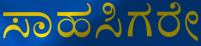
ಸಾಹಸಿಗರೇ